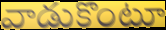
వాడుకొంటూ